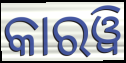
କାରୱି